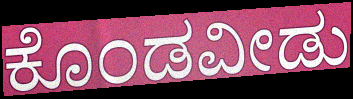
ಕೊಂಡವೀಡು